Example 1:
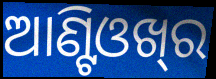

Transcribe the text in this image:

ଆଣ୍ଟିଓଖ୍‍ର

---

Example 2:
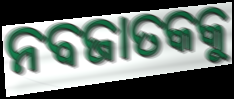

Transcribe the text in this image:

ନବଜାତକକୁ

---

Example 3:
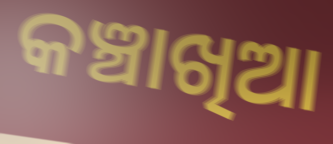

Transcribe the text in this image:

କଞ୍ଚାଖିଆ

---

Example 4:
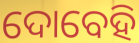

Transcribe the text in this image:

ଦୋବେହି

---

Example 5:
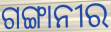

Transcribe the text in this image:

ଗଙ୍ଗାନୀର